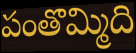
పంతొమ్మిది